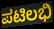
ಪಟಿಲಭಿ